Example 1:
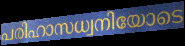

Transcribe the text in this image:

പരിഹാസധ്വനിയോടെ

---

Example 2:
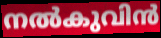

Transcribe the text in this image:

നൽകുവിൻ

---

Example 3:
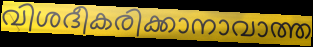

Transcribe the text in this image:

വിശദീകരിക്കാനാവാത്ത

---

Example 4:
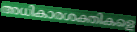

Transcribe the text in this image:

അധികാരശക്തികളെ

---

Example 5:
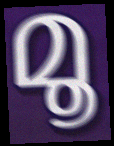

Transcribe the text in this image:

മൂ